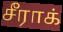
சீராக்